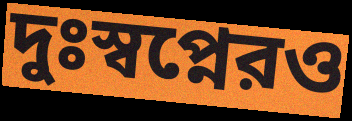
দুঃস্বপ্নেরও